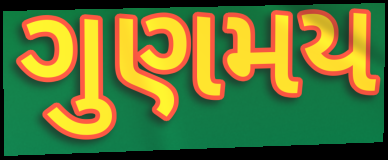
ગુણમય